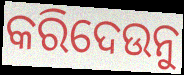
କରିଦେଉନୁ